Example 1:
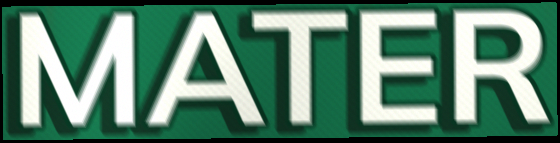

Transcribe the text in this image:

MATER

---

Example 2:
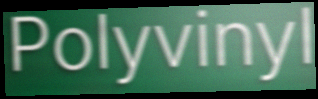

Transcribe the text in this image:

Polyvinyl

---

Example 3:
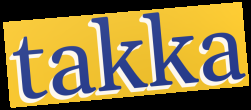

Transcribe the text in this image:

takka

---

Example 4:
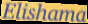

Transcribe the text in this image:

Elishama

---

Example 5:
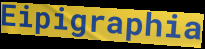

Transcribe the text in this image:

Eipigraphia